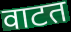
वाटत